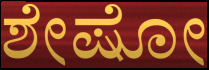
ಶೇಷೋ